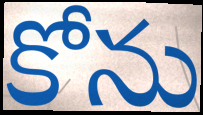
కోను